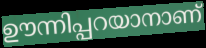
ഊന്നിപ്പറയാനാണ്